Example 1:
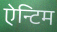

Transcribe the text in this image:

ऐन्टिम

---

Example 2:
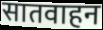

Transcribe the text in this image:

सातवाहन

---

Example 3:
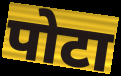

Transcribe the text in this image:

पोटा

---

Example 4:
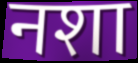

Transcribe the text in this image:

नशा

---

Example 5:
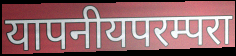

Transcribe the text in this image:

यापनीयपरम्परा